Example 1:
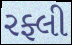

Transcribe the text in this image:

રફ્લી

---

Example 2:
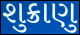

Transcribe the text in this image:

શુક્રાણુ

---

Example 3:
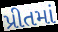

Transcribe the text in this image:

પ્રીતમાં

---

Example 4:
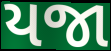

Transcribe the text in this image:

યજા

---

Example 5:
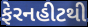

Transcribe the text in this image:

ફેરનહીટથી